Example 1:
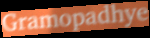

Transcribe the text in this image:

Gramopadhye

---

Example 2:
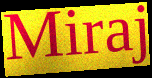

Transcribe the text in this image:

Miraj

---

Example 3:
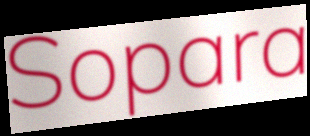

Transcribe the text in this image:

Sopara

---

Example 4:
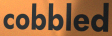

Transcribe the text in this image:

cobbled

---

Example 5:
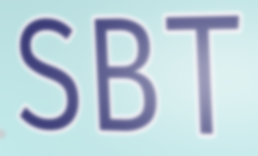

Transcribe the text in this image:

SBT